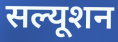
सल्यूशन